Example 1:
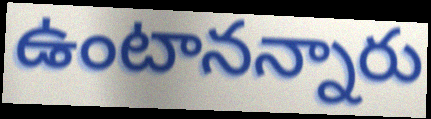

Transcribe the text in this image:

ఉంటానన్నారు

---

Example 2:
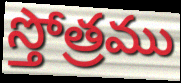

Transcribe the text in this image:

స్తోత్రము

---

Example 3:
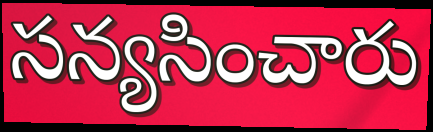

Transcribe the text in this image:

సన్యసించారు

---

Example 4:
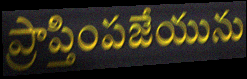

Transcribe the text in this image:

ప్రాప్తింపజేయును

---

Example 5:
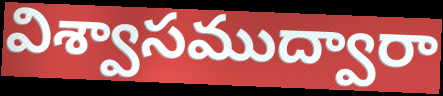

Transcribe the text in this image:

విశ్వాసముద్వారా